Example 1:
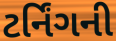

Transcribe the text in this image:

ટર્નિંગની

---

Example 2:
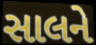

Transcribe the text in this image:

સાલને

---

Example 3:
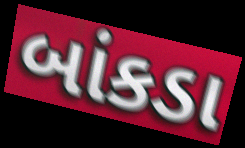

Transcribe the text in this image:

બાંકડા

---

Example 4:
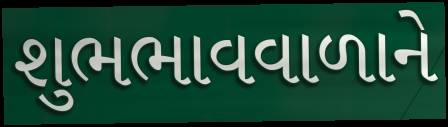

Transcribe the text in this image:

શુભભાવવાળાને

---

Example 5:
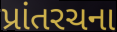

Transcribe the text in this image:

પ્રાંતરચના